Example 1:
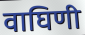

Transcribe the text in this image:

वाघिणी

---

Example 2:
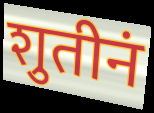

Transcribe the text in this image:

श्रुतीनं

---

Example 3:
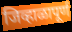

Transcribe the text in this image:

जिव्हाळापूर्ण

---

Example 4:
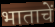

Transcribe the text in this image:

भाताचें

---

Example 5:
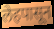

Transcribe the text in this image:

लेहपासून